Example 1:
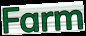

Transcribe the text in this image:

Farm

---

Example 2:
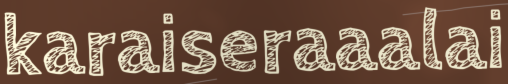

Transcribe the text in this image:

karaiseraaalai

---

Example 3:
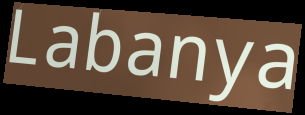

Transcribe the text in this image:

Labanya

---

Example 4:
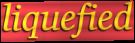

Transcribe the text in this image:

liquefied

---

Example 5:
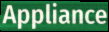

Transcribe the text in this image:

Appliance